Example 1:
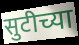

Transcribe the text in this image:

सुटीच्या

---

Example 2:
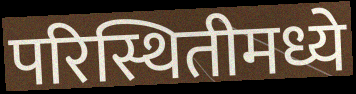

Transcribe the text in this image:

परिस्थितीमध्ये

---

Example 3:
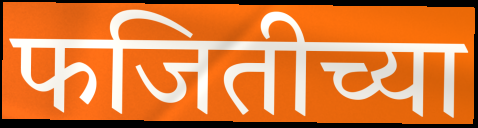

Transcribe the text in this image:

फजितीच्या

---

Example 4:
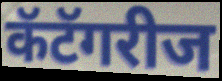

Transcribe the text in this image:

कॅटॅगरीज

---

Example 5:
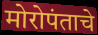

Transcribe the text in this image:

मोरोपंताचे